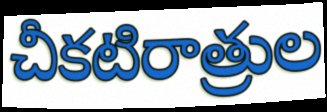
చీకటిరాత్రుల